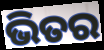
ଭିତର